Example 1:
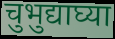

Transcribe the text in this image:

चुभुद्याघ्या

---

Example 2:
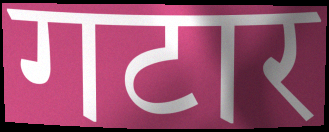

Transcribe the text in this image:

गटार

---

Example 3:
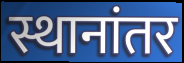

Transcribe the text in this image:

स्थानांतर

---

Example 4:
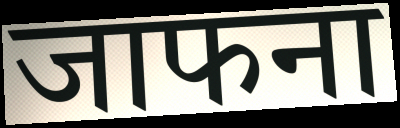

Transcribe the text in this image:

जाफना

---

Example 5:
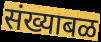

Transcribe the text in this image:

संख्याबळ